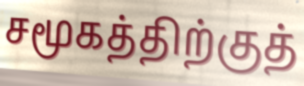
சமூகத்திற்குத்